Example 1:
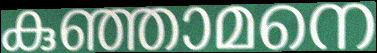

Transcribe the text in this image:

കുഞ്ഞാമനെ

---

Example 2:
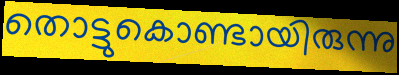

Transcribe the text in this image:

തൊട്ടുകൊണ്ടായിരുന്നു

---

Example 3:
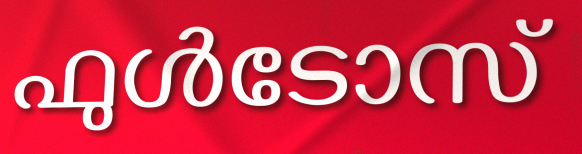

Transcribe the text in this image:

ഫുൾടോസ്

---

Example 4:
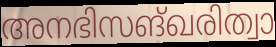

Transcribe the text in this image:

അനഭിസങ്ഖരിത്വാ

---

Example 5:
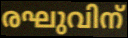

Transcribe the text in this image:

രഘുവിന്